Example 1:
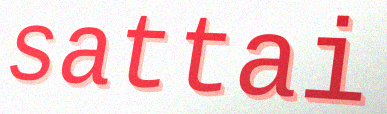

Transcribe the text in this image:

sattai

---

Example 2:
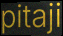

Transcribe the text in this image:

pitaji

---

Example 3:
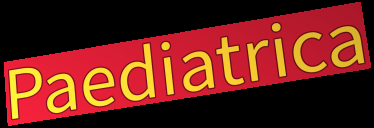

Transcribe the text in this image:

Paediatrica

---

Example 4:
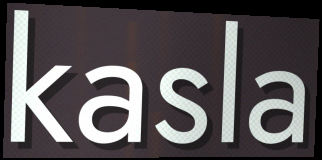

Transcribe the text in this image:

kasla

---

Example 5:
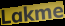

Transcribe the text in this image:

Lakme